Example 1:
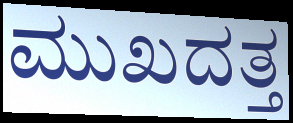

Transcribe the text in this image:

ಮುಖದತ್ತ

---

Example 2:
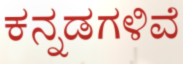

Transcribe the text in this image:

ಕನ್ನಡಗಳಿವೆ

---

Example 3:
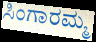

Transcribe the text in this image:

ಸಿಂಗಾರಮ್ಮ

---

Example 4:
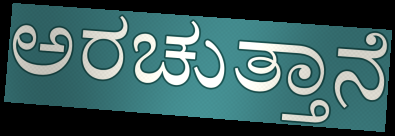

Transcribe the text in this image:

ಅರಚುತ್ತಾನೆ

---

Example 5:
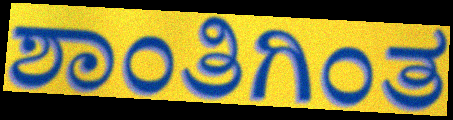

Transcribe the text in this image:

ಶಾಂತಿಗಿಂತ